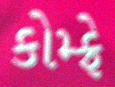
કોમ્ફ્રે